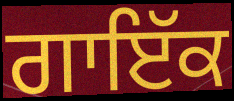
ਗਾਇੱਕ